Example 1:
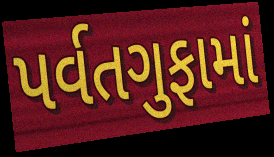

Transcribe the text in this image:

પર્વતગુફામાં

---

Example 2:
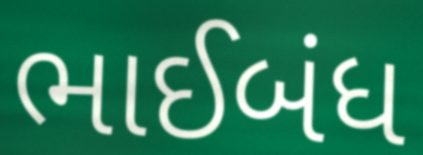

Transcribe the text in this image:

ભાઈબંધ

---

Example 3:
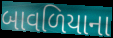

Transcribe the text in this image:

બાવળિયાના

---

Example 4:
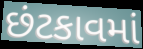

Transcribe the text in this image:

છંટકાવમાં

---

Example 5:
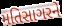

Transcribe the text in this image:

મતિસાગરને